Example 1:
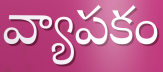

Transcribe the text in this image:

వ్యాపకం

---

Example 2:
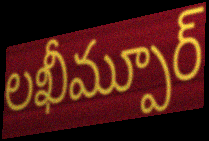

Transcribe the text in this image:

లఖీమ్పూర్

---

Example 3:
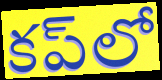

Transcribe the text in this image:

కప్‌లో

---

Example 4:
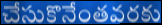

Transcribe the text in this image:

చేసుకొనేంతవరకు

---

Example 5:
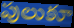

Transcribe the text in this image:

పులుకూ